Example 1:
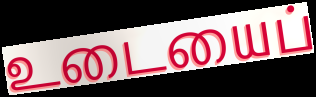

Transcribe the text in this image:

உடையைப்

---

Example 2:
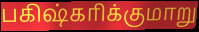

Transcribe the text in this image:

பகிஷ்கரிக்குமாறு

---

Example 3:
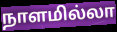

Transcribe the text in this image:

நாளமில்லா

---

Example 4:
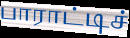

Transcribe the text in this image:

பாராட்டிச்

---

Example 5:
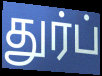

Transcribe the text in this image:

துர்ப்